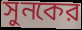
সুনকের